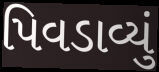
પિવડાવ્યું